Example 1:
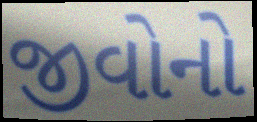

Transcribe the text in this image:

જીવોનો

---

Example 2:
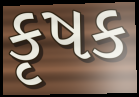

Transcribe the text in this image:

કૃષક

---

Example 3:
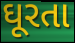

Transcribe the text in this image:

ઘૂરતા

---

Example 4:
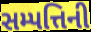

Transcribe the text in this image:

સમ્પત્તિની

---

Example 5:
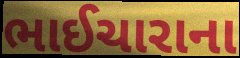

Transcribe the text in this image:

ભાઈચારાના